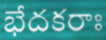
భేదకరాః